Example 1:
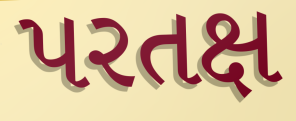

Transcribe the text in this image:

પરતક્ષ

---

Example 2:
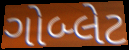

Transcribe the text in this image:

ગોબ્લેટ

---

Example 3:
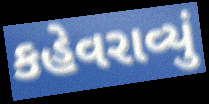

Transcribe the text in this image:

કહેવરાવ્યું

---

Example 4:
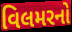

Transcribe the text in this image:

વિલમરનો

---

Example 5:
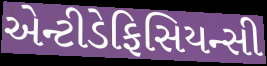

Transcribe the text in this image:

એન્ટીડેફિસિયન્સી